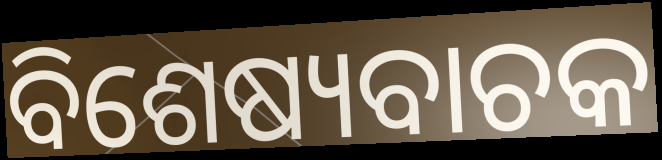
ବିଶେଷ୍ୟବାଚକ